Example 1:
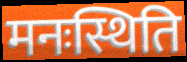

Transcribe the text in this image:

मनःस्थिति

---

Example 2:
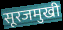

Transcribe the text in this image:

सूरजमुखी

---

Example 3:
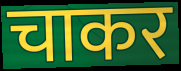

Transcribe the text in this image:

चाकर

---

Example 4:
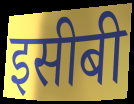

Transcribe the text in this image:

इसीबी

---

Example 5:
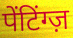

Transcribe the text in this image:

पेंटिंग्ज़